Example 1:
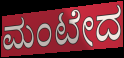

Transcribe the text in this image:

ಮಂಟೇದ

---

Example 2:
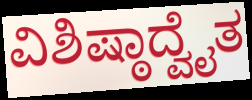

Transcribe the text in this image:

ವಿಶಿಷ್ಠಾದ್ವೈತ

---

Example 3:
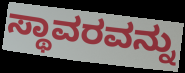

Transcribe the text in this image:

ಸ್ಥಾವರವನ್ನು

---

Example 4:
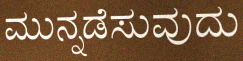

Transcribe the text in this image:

ಮುನ್ನಡೆಸುವುದು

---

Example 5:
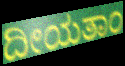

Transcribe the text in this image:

ದೀಯತಾಂ